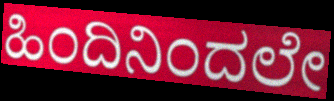
ಹಿಂದಿನಿಂದಲೇ